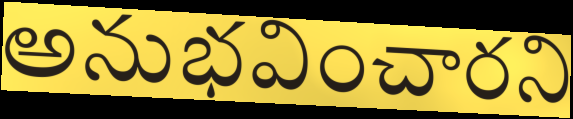
అనుభవించారని